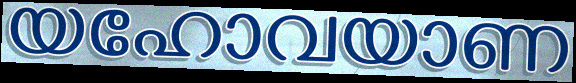
യഹോവയാണ